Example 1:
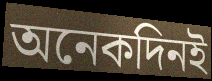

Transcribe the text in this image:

অনেকদিনই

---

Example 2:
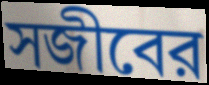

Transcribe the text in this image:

সজীবের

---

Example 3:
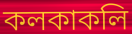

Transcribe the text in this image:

কলকাকলি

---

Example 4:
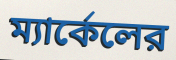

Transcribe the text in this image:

ম্যার্কেলের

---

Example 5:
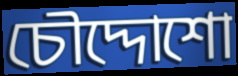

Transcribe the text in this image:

চৌদ্দোশো